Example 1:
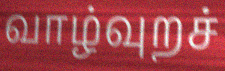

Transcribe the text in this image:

வாழ்வுறச்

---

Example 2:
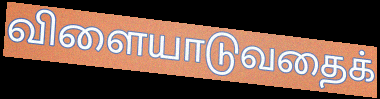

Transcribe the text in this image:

விளையாடுவதைக்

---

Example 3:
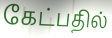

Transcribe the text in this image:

கேட்பதில்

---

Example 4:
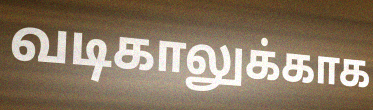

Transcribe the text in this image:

வடிகாலுக்காக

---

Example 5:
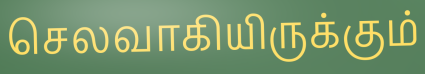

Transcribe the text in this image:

செலவாகியிருக்கும்